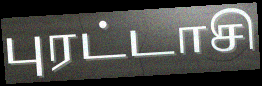
புரட்டாசி